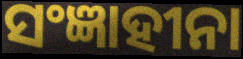
ସଂଜ୍ଞାହୀନା